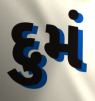
દુમં